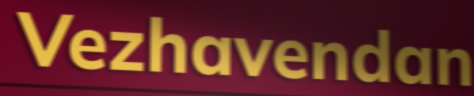
Vezhavendan